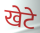
खेटे